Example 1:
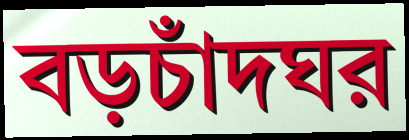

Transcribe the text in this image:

বড়চাঁদঘর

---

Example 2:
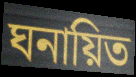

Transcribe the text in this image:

ঘনায়িত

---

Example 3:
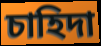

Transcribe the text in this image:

চাহিদা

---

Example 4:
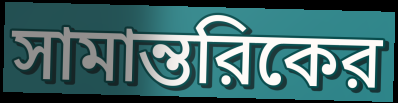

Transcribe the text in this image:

সামান্তরিকের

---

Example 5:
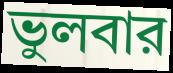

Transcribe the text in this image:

ভুলবার